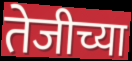
तेजीच्या